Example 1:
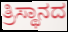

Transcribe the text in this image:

ತ್ರಿಸ್ಥಾನದ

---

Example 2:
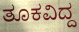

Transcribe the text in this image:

ತೂಕವಿದ್ದ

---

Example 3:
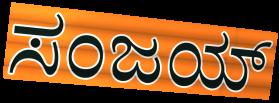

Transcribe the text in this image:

ಸಂಜಯ್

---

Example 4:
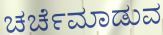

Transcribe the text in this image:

ಚರ್ಚೆಮಾಡುವ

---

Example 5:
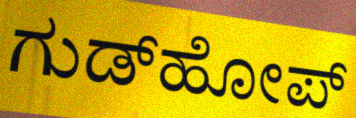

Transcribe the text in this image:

ಗುಡ್‌ಹೋಪ್